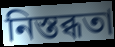
নিস্তব্ধতা